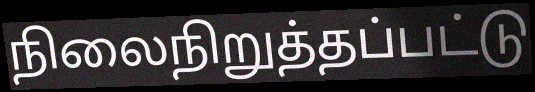
நிலைநிறுத்தப்பட்டு